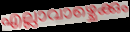
എല്ലാവാഴ്ചെക്കും